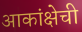
आकांक्षेची